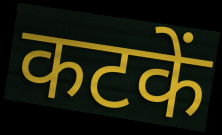
कटकें